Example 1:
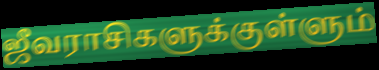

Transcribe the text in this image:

ஜீவராசிகளுக்குள்ளும்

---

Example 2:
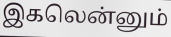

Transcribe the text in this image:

இகலென்னும்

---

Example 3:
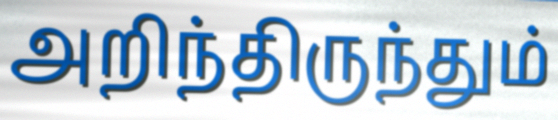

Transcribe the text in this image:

அறிந்திருந்தும்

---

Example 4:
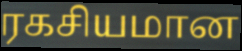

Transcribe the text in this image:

ரகசியமான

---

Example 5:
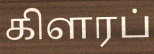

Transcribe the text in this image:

கிளரப்